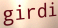
girdi